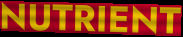
NUTRIENT